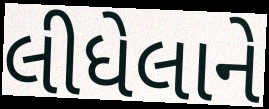
લીધેલાને